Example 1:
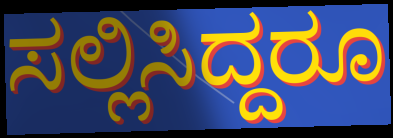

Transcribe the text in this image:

ಸಲ್ಲಿಸಿದ್ದರೂ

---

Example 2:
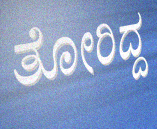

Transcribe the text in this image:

ತೋರಿದ್ದ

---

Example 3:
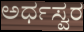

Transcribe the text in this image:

ಅರ್ಧಸ್ವರ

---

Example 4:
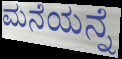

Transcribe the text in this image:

ಮನೆಯನ್ನೆ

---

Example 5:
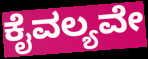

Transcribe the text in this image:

ಕೈವಲ್ಯವೇ